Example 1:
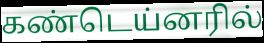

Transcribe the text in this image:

கண்டெய்னரில்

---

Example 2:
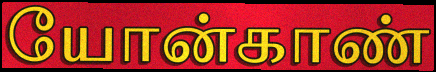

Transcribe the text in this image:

யோன்காண்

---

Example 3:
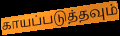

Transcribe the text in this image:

காயப்படுத்தவும்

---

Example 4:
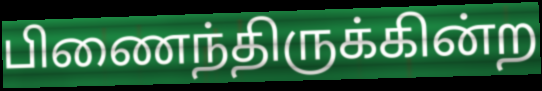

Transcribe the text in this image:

பிணைந்திருக்கின்ற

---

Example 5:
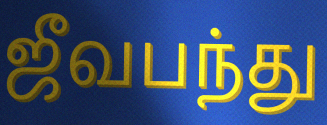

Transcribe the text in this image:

ஜீவபந்து